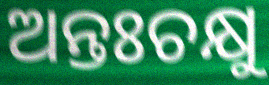
ଅନ୍ତଃଚକ୍ଷୁ